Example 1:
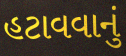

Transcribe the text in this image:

હટાવવાનું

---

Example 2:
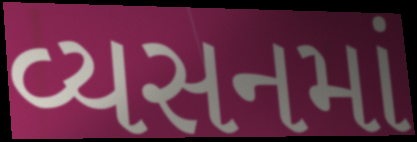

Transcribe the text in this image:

વ્યસનમાં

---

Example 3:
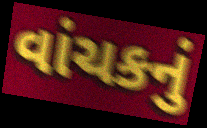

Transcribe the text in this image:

વાંચકનું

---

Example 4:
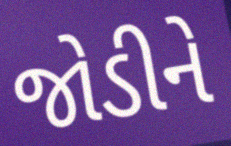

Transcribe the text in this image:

જોડીને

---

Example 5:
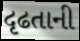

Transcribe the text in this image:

દૃઢતાની